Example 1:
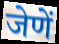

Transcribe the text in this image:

जेणें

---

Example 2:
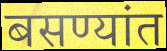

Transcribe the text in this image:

बसण्यांत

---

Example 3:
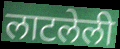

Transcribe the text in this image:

लाटलेली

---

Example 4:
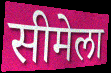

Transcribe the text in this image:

सीमेला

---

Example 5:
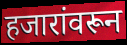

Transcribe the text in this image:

हजारांवरून